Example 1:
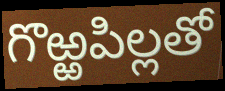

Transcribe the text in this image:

గొఱ్ఱపిల్లతో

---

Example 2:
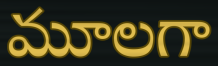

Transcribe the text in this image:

మూలగా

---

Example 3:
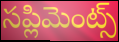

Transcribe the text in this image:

సప్లిమెంట్స్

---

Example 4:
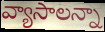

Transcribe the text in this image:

వ్యాసాలన్నా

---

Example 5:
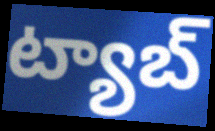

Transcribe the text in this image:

ట్యాబ్